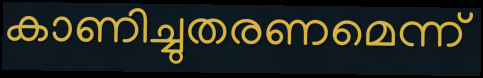
കാണിച്ചുതരണമെന്ന്